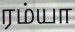
ரம்யா